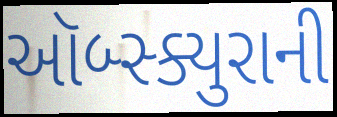
ઑબ્સ્ક્યુરાની